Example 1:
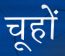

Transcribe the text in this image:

चूहों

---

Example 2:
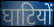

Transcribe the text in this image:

घाटियों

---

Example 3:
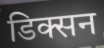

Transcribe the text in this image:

डिक्सन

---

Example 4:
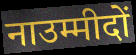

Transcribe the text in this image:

नाउम्मीदों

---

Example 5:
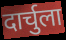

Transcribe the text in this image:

दार्चुला